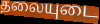
தலையுடை